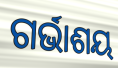
ଗର୍ଭାଶୟ